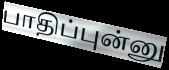
பாதிப்புன்னு